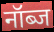
नॉब्ज